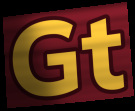
Gt